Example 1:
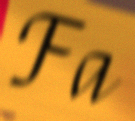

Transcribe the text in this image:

Fa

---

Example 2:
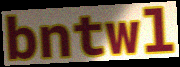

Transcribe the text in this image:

bntwl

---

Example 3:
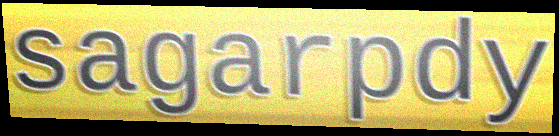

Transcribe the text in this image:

sagarpdy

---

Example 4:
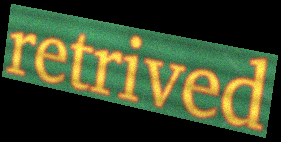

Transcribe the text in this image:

retrived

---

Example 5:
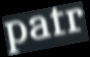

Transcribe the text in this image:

patr